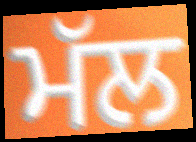
ਮੱਲ